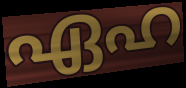
ഏഹ